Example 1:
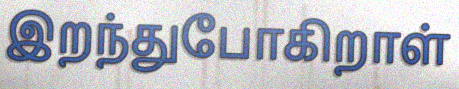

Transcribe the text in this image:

இறந்துபோகிறாள்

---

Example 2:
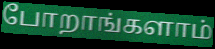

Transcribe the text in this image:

போறாங்களாம்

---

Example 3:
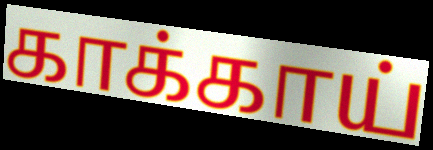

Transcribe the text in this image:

காக்காய்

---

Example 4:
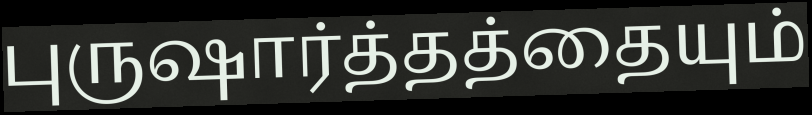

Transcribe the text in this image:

புருஷார்த்தத்தையும்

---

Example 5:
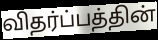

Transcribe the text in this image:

விதர்ப்பத்தின்